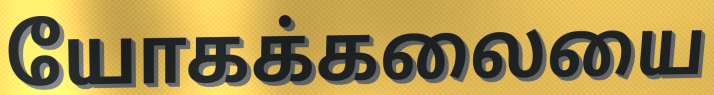
யோகக்கலையை